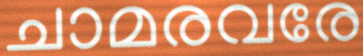
ചാമരവരേ